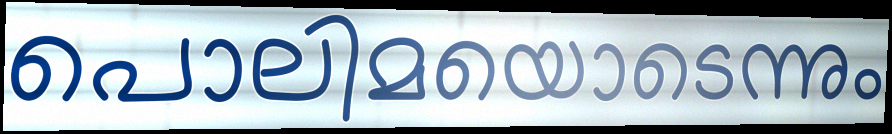
പൊലിമയൊടെന്നും